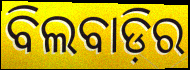
ବିଲବାଡ଼ିର